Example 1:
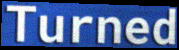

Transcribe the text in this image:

Turned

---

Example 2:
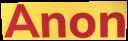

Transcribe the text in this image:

Anon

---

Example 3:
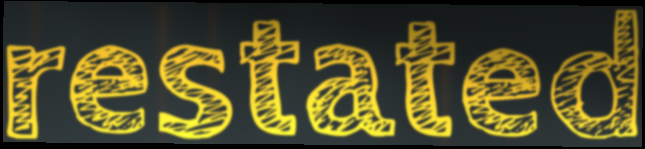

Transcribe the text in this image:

restated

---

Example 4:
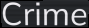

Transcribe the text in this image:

Crime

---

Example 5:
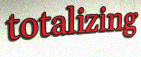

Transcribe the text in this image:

totalizing